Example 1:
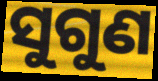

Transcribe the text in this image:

ସୁଗୁଣ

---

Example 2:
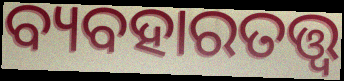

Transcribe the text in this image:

ବ୍ୟବହାରତତ୍ତ୍ବ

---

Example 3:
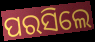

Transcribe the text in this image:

ପରସିଲେ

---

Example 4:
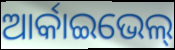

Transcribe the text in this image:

ଆର୍କାଇଭେଲ୍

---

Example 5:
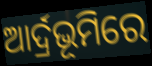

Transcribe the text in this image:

ଆର୍ଦ୍ରଭୂମିରେ